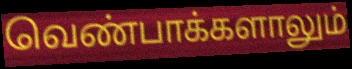
வெண்பாக்களாலும்